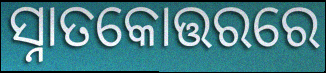
ସ୍ନାତକୋତ୍ତରରେ